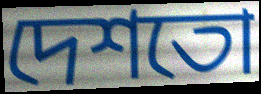
দেশতো